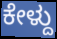
ಕೇಳ್ದು